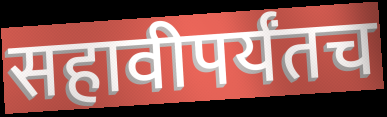
सहावीपर्यंतच